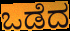
ಒಡೆದ